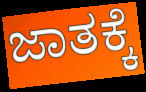
ಜಾತಕ್ಕೆ